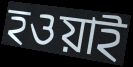
হওয়াই